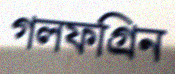
গলফগ্রিন